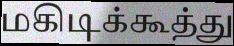
மகிடிக்கூத்து